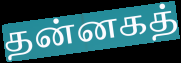
தன்னகத்